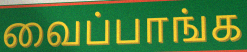
வைப்பாங்க